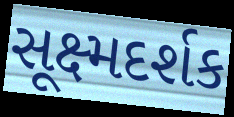
સૂક્ષ્મદર્શક